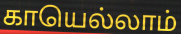
காயெல்லாம்